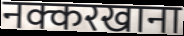
नक्करखाना